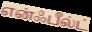
என்ஃபீல்ட்